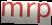
mrp